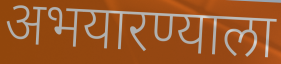
अभयारण्याला